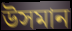
উসমান